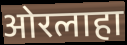
ओरलाहा